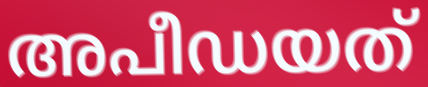
അപീഡയത്